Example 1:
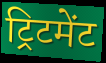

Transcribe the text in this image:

ट्रिटमेंट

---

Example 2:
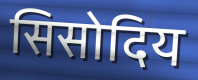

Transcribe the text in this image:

सिसोदिय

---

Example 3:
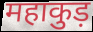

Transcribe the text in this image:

महाकुड़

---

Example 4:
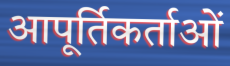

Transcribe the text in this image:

आपूर्तिकर्ताओं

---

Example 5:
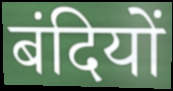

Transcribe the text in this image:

बंदियों